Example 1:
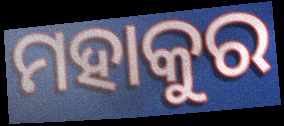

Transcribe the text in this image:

ମହାକୁର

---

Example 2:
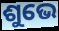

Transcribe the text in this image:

ଶୁଭେ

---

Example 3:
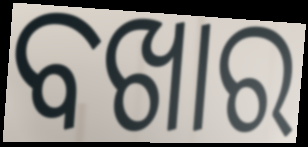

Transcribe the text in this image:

ବଖାର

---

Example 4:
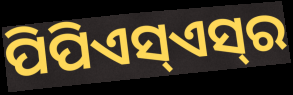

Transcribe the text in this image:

ପିପିଏସ୍ଏସ୍‌ର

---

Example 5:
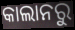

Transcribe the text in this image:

କାଲାନରୁ